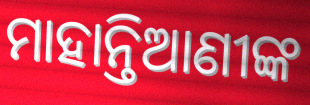
ମାହାନ୍ତିଆଣୀଙ୍କ